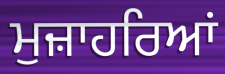
ਮੁਜ਼ਾਹਰਿਆਂ